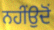
ਨਹੀਂਉਦੋਂ